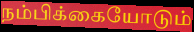
நம்பிக்கையோடும்